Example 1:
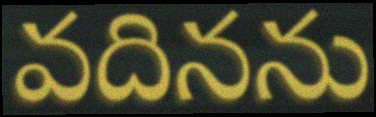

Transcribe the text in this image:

వదినను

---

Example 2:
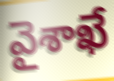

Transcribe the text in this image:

వైశాఖే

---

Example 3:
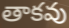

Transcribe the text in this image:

తాకవు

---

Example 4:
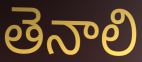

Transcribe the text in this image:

తెనాలి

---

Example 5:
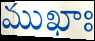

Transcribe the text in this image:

ముఖాః